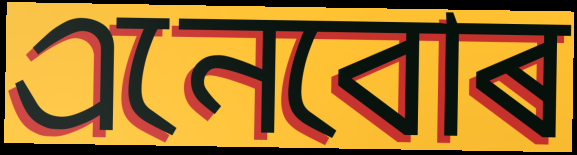
এনেবোৰ